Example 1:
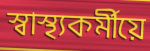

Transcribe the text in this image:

স্বাস্থ্যকৰ্মীয়ে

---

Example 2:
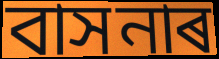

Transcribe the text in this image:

বাসনাৰ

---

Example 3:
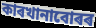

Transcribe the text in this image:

কাৰখানাবোৰৰ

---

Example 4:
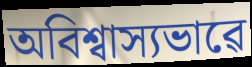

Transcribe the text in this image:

অবিশ্বাস্যভাৱে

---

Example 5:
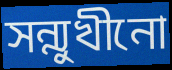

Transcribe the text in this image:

সন্মুখীনো